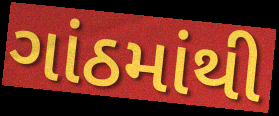
ગાંઠમાંથી